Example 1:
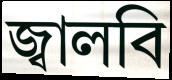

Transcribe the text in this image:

জ্বালবি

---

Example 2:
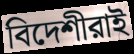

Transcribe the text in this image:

বিদেশীরাই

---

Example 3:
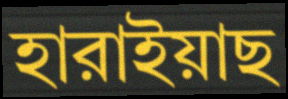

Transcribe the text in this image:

হারাইয়াছ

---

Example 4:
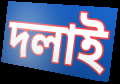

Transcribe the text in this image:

দলাই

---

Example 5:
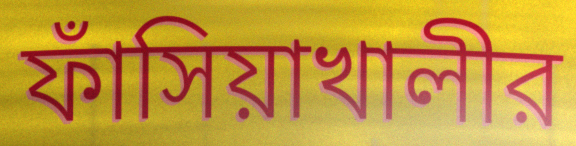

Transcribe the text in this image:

ফাঁসিয়াখালীর